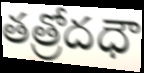
తత్రోదధౌ